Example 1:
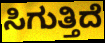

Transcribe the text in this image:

ಸಿಗುತ್ತಿದೆ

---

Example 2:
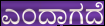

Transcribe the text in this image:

ಎಂದಾಗದೆ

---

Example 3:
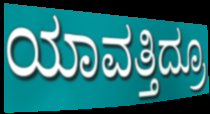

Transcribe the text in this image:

ಯಾವತ್ತಿದ್ರೂ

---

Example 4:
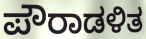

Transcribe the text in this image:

ಪೌರಾಡಳಿತ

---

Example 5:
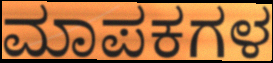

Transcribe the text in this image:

ಮಾಪಕಗಳ